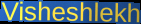
Visheshlekh